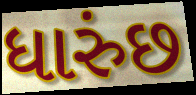
ધારુંછ